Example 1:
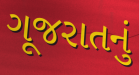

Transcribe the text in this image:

ગૂજરાતનું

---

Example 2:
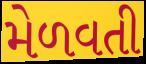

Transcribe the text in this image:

મેળવતી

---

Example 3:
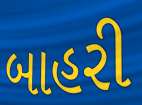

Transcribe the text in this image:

બાહરી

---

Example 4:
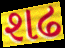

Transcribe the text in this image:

શઢ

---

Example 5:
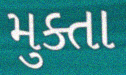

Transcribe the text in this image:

મુક્તા